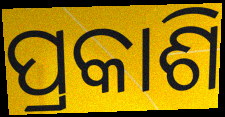
ପ୍ରକାଶି